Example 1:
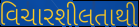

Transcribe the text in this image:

વિચારશીલતાથી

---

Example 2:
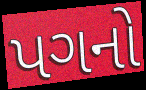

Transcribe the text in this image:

પગનો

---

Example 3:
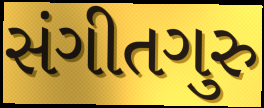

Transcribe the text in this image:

સંગીતગુરુ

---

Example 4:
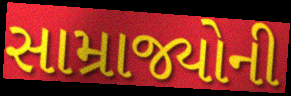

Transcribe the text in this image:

સામ્રાજ્યોની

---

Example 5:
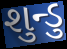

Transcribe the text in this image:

શુન્ડુ